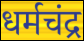
धर्मचंद्र